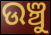
ଉଞ୍ଚୁ